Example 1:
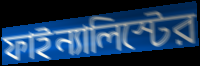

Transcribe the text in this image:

ফাইন্যালিস্টের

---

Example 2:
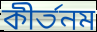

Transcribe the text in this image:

কীর্তনম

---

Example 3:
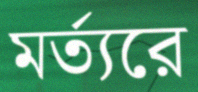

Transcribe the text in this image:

মর্ত্যরে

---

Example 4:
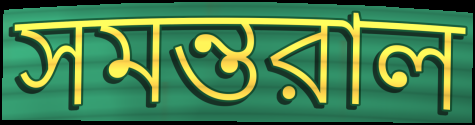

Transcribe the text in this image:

সমন্তরাল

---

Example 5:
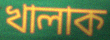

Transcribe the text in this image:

খালাক